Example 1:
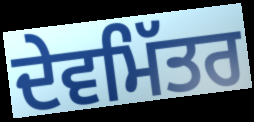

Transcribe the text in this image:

ਦੇਵਮਿੱਤਰ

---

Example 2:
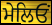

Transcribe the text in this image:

ਮੇਲਿਓਂ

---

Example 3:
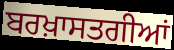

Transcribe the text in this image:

ਬਰਖ਼ਾਸਤਗੀਆਂ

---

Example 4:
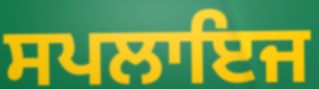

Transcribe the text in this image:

ਸਪਲਾਇਜ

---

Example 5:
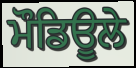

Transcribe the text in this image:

ਮੌਡਿਊਲੇ